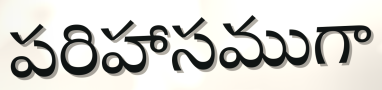
పరిహాసముగా